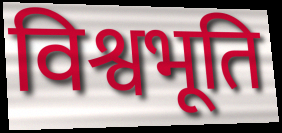
विश्वभूति